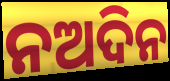
ନଅଦିନ